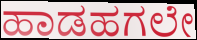
ಹಾಡಹಗಲೇ